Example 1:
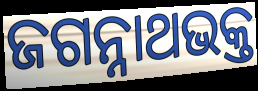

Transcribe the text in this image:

ଜଗନ୍ନାଥଭକ୍ତ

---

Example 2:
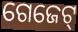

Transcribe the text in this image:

ଗେଜେଟ୍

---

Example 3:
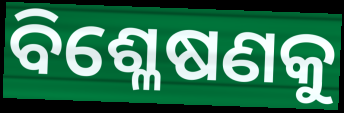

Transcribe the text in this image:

ବିଶ୍ଳେଷଣକୁ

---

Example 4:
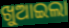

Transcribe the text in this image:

ଖୁଆଇଲା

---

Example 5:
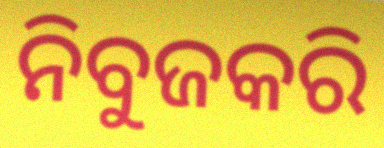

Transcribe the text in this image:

ନିବୁଜକରି